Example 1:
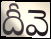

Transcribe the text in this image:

దీవె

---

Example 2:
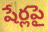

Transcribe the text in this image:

షేర్లపై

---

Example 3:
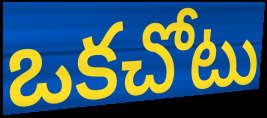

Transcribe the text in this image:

ఒకచోటు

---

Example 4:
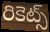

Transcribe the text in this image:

రికెట్స్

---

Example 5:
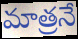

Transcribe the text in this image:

మాత్రనే